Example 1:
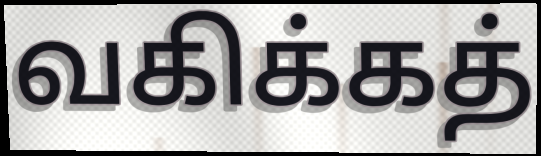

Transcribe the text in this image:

வகிக்கத்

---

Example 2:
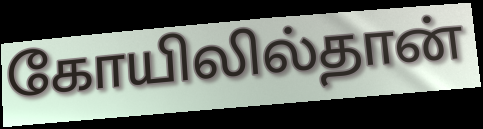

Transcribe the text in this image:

கோயிலில்தான்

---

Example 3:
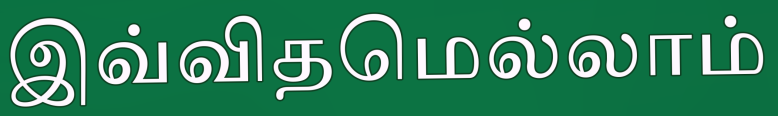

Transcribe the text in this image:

இவ்விதமெல்லாம்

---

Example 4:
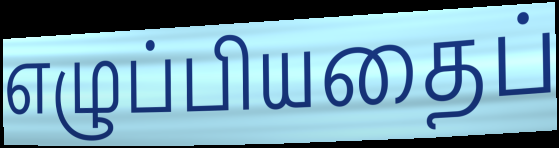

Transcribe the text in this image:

எழுப்பியதைப்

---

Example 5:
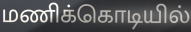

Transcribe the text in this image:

மணிக்கொடியில்